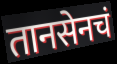
तानसेनचं